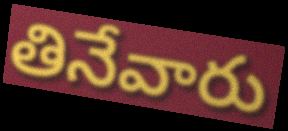
తినేవారు